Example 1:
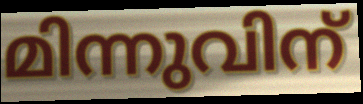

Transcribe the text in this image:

മിന്നുവിന്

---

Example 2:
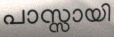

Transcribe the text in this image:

പാസ്സായി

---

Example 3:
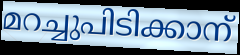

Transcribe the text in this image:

മറച്ചുപിടിക്കാന്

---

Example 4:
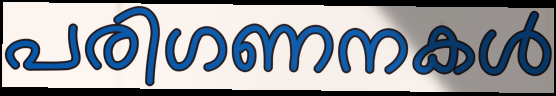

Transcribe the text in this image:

പരിഗണനകൾ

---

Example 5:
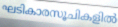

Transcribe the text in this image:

ഘടികാരസൂചികളിൽ